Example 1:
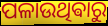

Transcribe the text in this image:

ପଳାଉଥିଵାରୁ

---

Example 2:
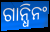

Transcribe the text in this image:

ଗାନ୍ଧିନଂ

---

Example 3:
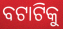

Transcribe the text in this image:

ବଟାଟିକୁ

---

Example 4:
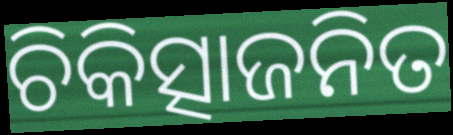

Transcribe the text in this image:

ଚିକିତ୍ସାଜନିତ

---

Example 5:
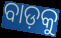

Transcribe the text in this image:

ବାଡ଼କୁ